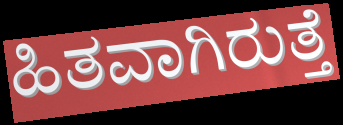
ಹಿತವಾಗಿರುತ್ತೆ